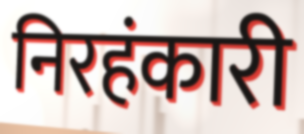
निरहंकारी